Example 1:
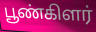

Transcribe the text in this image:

பூண்கிளர்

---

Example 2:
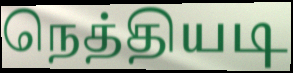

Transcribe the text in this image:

நெத்தியடி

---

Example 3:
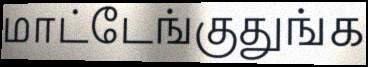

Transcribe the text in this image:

மாட்டேங்குதுங்க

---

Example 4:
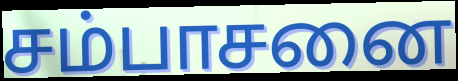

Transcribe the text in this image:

சம்பாசனை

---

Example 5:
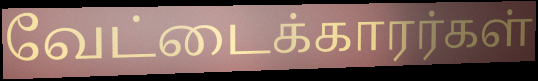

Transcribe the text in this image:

வேட்டைக்காரர்கள்